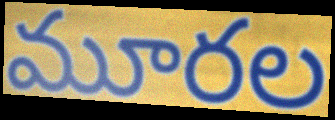
మూరల